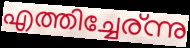
എത്തിച്ചേര്ന്നു